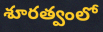
శూరత్వంలో